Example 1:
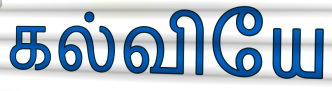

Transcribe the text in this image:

கல்வியே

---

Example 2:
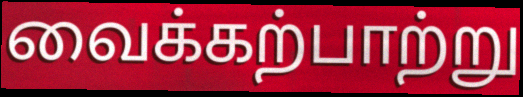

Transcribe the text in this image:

வைக்கற்பாற்று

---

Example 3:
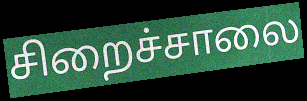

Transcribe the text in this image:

சிறைச்சாலை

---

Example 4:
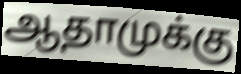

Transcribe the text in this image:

ஆதாமுக்கு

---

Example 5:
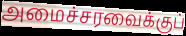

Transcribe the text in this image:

அமைச்சரவைக்குப்